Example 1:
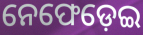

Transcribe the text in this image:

ନେଫେଡ଼େଇ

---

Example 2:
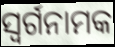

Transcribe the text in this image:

ସ୍ଵର୍ଗନାମକ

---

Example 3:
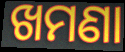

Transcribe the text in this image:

ଖମଣା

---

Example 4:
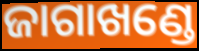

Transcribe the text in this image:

ଜାଗାଖଣ୍ଡେ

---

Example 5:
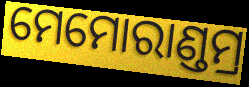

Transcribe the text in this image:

ମେମୋରାଣ୍ଡମ୍ର